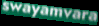
swayamvara